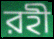
রহী